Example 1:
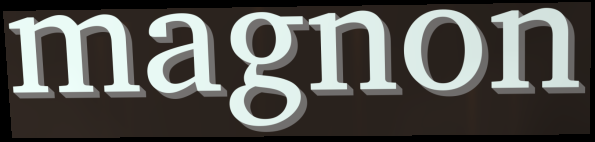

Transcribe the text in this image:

magnon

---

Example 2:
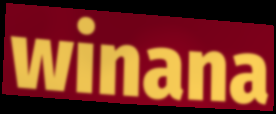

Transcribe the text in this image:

winana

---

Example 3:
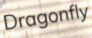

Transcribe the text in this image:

Dragonfly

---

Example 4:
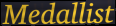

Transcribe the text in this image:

Medallist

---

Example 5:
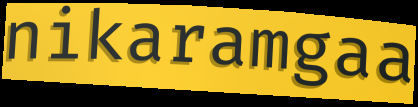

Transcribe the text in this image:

nikaramgaa